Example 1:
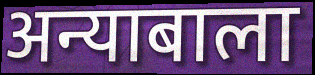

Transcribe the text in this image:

अन्याबाला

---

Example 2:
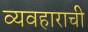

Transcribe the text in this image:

व्यवहाराची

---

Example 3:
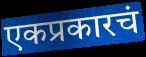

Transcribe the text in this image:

एकप्रकारचं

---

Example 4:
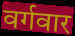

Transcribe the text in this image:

वर्गवार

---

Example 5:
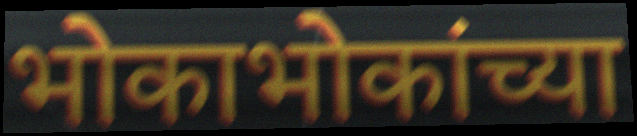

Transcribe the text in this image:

भोकाभोकांच्या